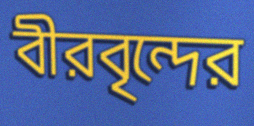
বীরবৃন্দের